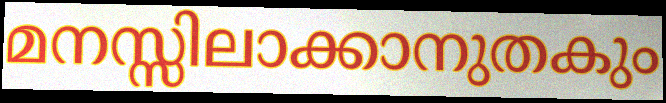
മനസ്സിലാക്കാനുതകും